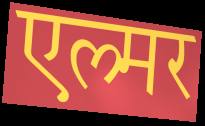
एल्मर